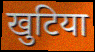
खुटिया